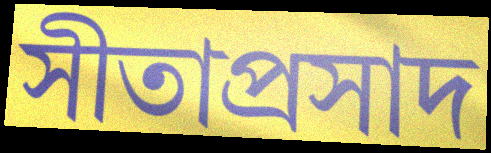
সীতাপ্রসাদ